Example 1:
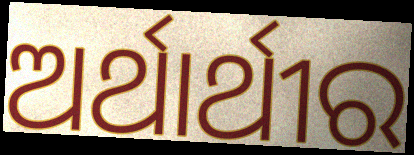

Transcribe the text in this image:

ଅର୍ଥାର୍ଥୀର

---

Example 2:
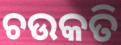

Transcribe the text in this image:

ଚଉକତି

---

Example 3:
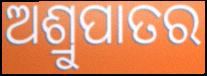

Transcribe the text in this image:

ଅଶ୍ରୁପାତର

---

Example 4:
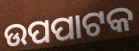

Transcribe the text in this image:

ଉପପାଟକ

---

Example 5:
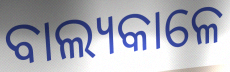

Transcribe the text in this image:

ବାଲ୍ୟକାଳେ